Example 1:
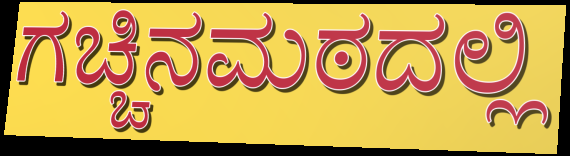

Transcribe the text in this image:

ಗಚ್ಚಿನಮಠದಲ್ಲಿ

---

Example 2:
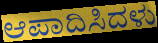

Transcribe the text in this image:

ಆಪಾದಿಸಿದಳು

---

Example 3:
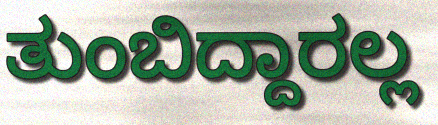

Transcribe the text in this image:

ತುಂಬಿದ್ದಾರಲ್ಲ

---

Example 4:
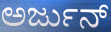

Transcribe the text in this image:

ಅರ್ಜುನ್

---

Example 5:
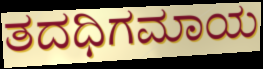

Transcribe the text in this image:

ತದಧಿಗಮಾಯ